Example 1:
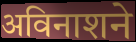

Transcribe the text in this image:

अविनाशने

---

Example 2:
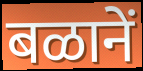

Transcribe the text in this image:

बळानें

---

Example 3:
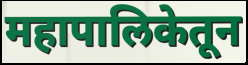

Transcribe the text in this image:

महापालिकेतून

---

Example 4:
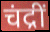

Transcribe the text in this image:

चंद्रीं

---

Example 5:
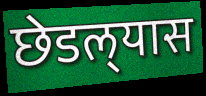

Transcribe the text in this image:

छेडल्यास